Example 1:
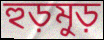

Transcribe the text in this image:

হুড়মুড়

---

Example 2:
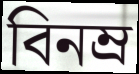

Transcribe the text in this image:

বিনম্র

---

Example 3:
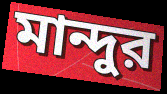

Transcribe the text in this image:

মান্দুর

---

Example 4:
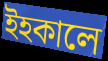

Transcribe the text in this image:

ইহকালে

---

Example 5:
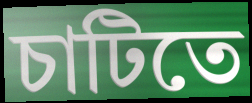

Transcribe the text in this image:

চাটিতে